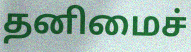
தனிமைச்